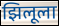
झिलूला